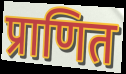
प्राणित